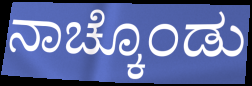
ನಾಚ್ಕೊಂಡು